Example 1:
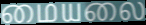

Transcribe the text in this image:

மையலை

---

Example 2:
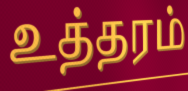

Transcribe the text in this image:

உத்தரம்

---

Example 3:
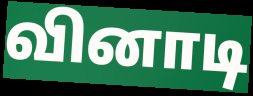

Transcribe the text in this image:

வினாடி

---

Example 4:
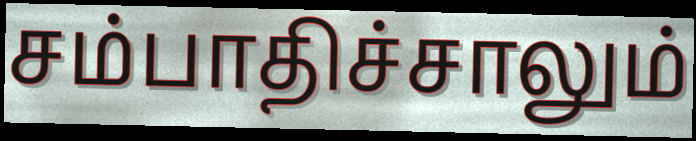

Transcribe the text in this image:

சம்பாதிச்சாலும்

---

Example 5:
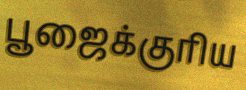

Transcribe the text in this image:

பூஜைக்குரிய